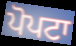
ਪੋਪਟਾ